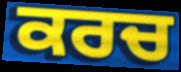
ਕਰਚ